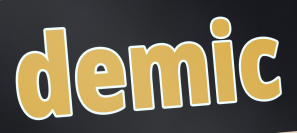
demic